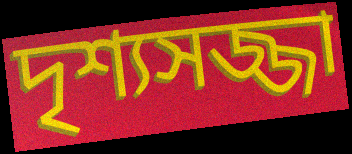
দৃশ্যসজ্জা